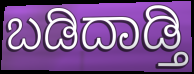
ಬಡಿದಾಡ್ತಿ